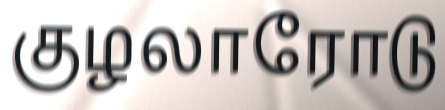
குழலாரோடு